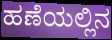
ಹಣೆಯಲ್ಲಿನ